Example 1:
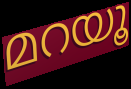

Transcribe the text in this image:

മറയൂ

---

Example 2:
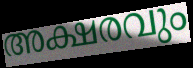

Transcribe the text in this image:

അക്ഷരവും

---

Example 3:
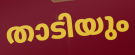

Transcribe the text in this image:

താടിയും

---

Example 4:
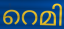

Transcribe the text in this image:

റെമി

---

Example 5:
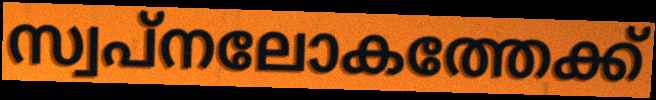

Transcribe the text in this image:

സ്വപ്നലോകത്തേക്ക്